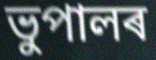
ভুপালৰ